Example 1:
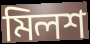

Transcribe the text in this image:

মিলশ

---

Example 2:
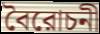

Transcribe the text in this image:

বৈরোচনী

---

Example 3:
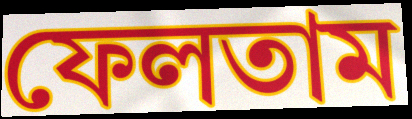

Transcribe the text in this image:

ফেলতাম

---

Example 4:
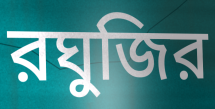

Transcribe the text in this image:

রঘুজির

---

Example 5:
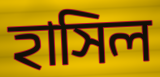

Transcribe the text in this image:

হাসিল